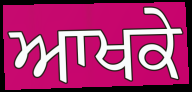
ਆਖਕੇ